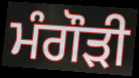
ਮੰਗੌੜੀ